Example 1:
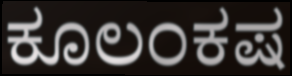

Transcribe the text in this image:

ಕೂಲಂಕಷ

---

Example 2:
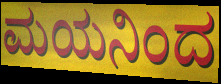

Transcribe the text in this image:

ಮಯನಿಂದ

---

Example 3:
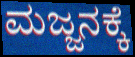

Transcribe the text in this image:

ಮಜ್ಜನಕ್ಕೆ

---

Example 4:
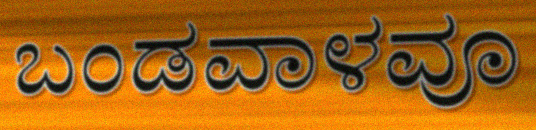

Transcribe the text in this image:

ಬಂಡವಾಳವೂ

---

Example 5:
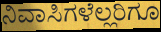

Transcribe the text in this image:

ನಿವಾಸಿಗಳೆಲ್ಲರಿಗೂ